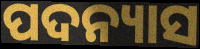
ପଦନ୍ୟାସ